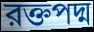
রক্তপদ্ম